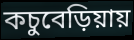
কচুবেড়িয়ায়